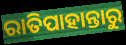
ରାତିପାହାନ୍ତାରୁ